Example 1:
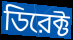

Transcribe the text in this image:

ডিরেক্ট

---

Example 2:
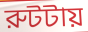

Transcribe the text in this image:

রুটটায়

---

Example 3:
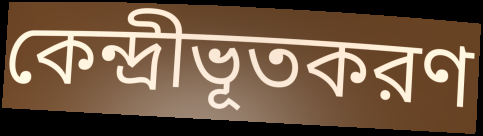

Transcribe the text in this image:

কেন্দ্রীভূতকরণ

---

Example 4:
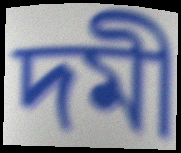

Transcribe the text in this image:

দমী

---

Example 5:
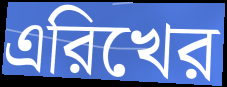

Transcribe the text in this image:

এরিখের